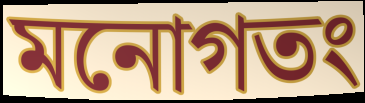
মনোগতং